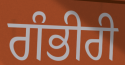
ਗੰਭੀਰੀ